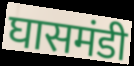
घासमंडी